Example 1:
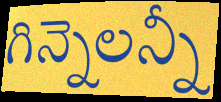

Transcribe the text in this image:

గిన్నెలన్నీ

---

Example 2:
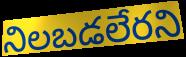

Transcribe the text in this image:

నిలబడలేరని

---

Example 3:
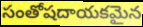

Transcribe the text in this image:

సంతోషదాయకమైన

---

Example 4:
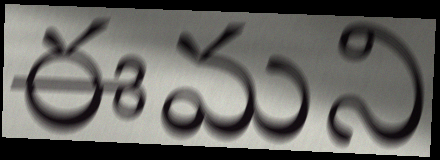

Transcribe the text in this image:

ఈమని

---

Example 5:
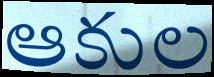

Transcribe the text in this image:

ఆకుల